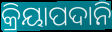
କ୍ରିୟାପଦାନି